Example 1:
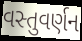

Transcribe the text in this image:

વસ્તુવર્ણન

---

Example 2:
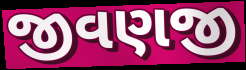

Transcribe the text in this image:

જીવણજી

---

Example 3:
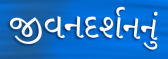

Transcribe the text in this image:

જીવનદર્શનનું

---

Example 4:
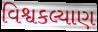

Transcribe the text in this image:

વિશ્વકલ્યાણ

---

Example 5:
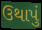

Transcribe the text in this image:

ઉથાપું